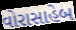
વોરાસાહેબ